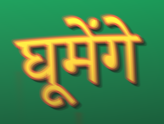
घूमेंगे